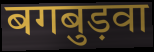
बगबुड़वा